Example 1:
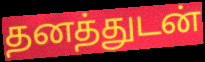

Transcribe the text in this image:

தனத்துடன்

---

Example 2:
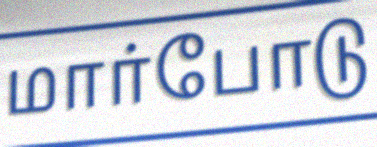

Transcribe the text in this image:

மார்போடு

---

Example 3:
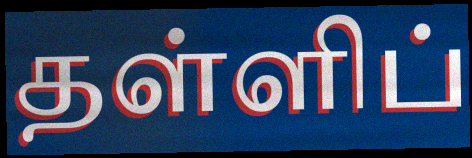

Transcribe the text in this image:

தள்ளிப்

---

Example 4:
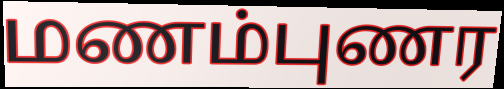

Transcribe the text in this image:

மணம்புணர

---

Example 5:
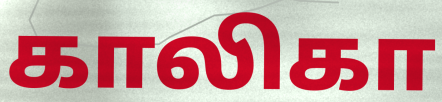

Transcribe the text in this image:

காலிகா